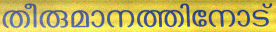
തീരുമാനത്തിനോട്